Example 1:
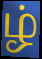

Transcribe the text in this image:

ழ்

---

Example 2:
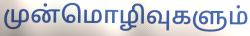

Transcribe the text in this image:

முன்மொழிவுகளும்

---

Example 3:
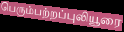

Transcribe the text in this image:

பெரும்பற்றப்புலியூரை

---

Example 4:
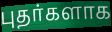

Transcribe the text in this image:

புதர்களாக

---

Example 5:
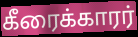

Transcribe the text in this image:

கீரைக்காரர்